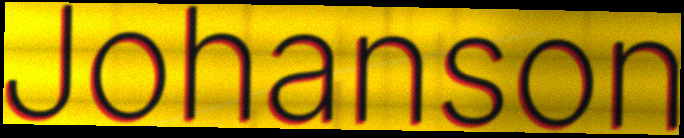
Johanson